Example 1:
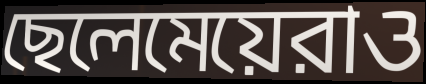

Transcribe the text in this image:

ছেলেমেয়েরাও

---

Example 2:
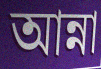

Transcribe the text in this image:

আন্না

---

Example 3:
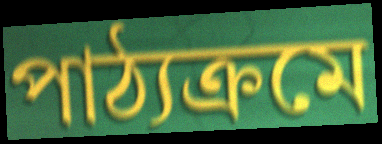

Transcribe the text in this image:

পাঠ্যক্রমে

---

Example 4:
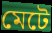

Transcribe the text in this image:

মেটে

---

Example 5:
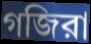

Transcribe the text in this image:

গজিরা